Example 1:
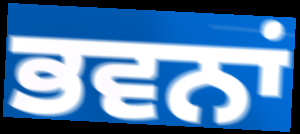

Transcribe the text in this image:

ਭਵਨਾਂ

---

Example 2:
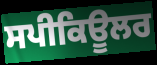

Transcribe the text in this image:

ਸਪੀਕਿਊਲਰ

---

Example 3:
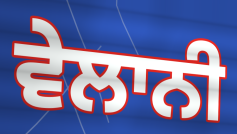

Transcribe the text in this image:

ਵੇਲਾਨੀ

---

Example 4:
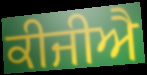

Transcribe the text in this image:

ਕੀਜੀਐ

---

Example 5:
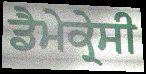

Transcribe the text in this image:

ਡੈਮੇਕ੍ਰੇਸੀ